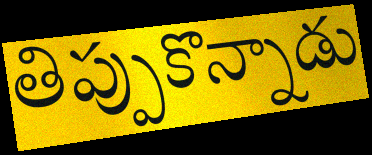
తిప్పుకొన్నాడు